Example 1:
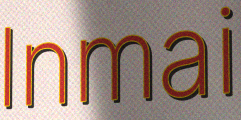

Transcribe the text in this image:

Inmai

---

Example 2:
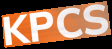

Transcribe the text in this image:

KPCS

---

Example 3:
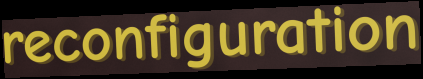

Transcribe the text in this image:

reconfiguration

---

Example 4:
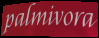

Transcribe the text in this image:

palmivora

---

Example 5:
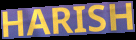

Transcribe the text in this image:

HARISH